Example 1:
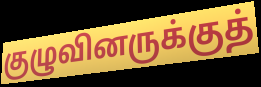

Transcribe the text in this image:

குழுவினருக்குத்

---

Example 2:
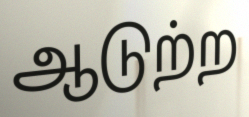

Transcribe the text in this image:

ஆடுற்ற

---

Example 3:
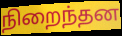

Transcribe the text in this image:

நிறைந்தன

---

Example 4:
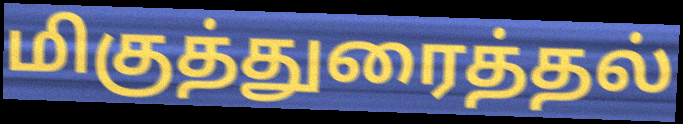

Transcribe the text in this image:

மிகுத்துரைத்தல்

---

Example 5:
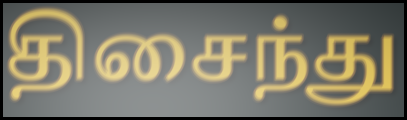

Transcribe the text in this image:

திசைந்து